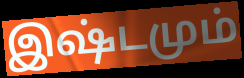
இஷ்டமும்